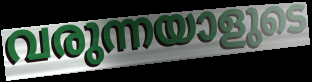
വരുന്നയാളുടെ